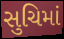
સુચિમાં